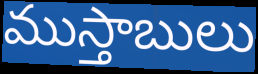
ముస్తాబులు